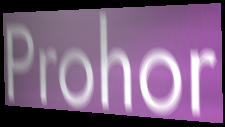
Prohor